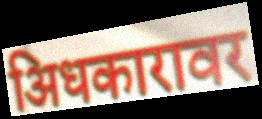
अिधकारावर